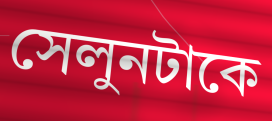
সেলুনটাকে